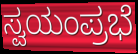
ಸ್ವಯಂಪ್ರಭೆ